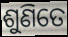
ଶୁଣିତେ